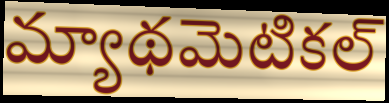
మ్యాథమెటికల్